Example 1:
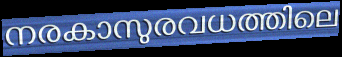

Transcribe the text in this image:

നരകാസുരവധത്തിലെ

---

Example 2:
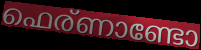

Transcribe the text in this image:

ഫെര്ണാണ്ടോ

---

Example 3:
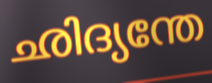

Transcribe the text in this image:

ഛിദ്യന്തേ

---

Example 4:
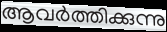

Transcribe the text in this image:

ആവർത്തിക്കുന്നു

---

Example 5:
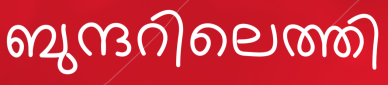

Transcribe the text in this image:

ബുന്ദറിലെത്തി